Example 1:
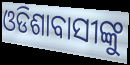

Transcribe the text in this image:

ଓଡିଶାବାସୀଙ୍କୁ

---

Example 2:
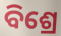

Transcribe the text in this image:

ବିଶ୍ରେ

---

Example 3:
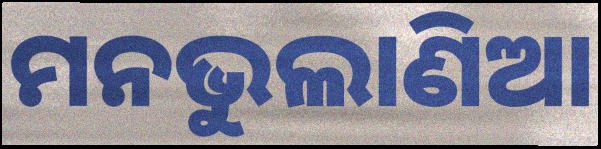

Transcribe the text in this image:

ମନଭୁଲାଣିଆ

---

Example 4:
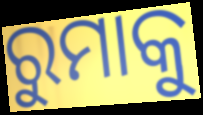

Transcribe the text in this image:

ରୁମାକୁ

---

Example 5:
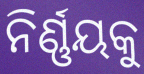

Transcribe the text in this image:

ନିର୍ଣ୍ଣୟକୁ